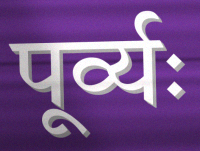
पूर्व्यः